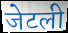
जेटली